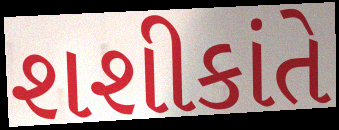
શશીકાંતે